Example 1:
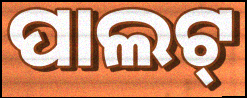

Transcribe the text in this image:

ପାଲଟ୍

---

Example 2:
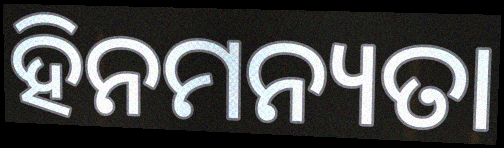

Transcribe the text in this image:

ହିନମନ୍ୟତା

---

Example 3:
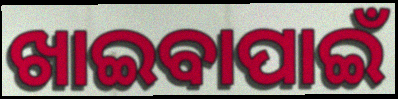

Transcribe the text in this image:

ଖାଇବାପାଇଁ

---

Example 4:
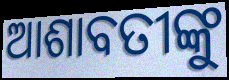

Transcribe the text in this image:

ଆଶାବତୀଙ୍କୁ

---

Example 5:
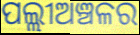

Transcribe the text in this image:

ପଲ୍ଲୀଅଞ୍ଚଳର